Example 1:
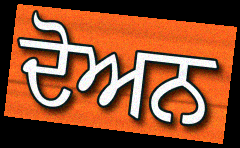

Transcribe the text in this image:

ਦੋਅਨ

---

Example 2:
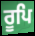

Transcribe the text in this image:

ਰੂਪਿ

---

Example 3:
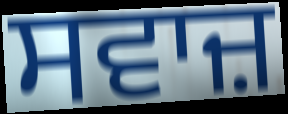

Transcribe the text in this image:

ਸਵਾਜ਼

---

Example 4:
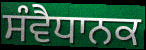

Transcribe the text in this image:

ਸੰਵੈਧਾਨਕ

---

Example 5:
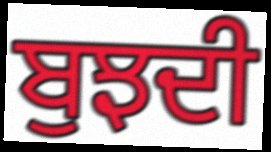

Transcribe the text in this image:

ਬੁਝਦੀ